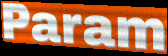
Param